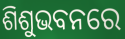
ଶିଶୁଭବନରେ